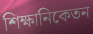
শিক্ষানিকেতন